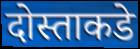
दोस्ताकडे